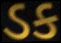
ડક